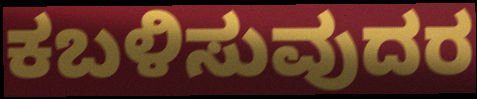
ಕಬಳಿಸುವುದರ